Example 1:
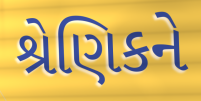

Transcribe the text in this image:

શ્રેણિકને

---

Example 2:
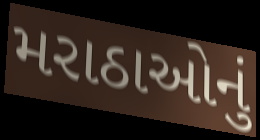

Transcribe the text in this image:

મરાઠાઓનું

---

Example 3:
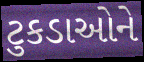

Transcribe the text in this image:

ટુકડાઓને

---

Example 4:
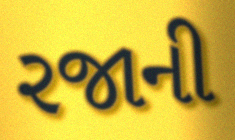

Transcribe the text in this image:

રજાની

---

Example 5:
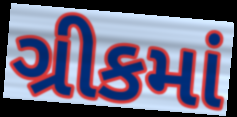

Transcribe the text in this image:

ગ્રીકમાં